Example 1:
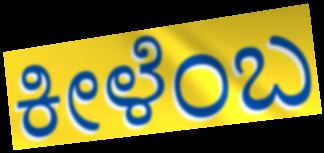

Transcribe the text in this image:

ಕೀಳೆಂಬ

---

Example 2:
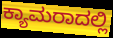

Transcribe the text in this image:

ಕ್ಯಾಮರಾದಲ್ಲಿ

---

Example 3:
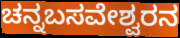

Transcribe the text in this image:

ಚನ್ನಬಸವೇಶ್ವರನ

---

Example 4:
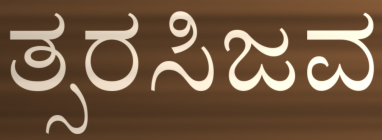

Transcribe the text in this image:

ತ್ಸರಸಿಜವ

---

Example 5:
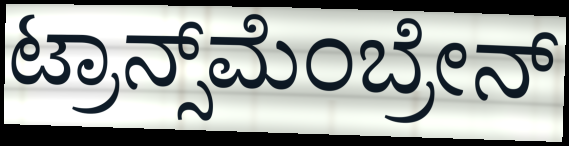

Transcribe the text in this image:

ಟ್ರಾನ್ಸ್‌ಮೆಂಬ್ರೇನ್